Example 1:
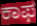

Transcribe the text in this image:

ಕಾಫ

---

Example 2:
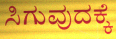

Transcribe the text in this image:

ಸಿಗುವುದಕ್ಕೆ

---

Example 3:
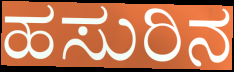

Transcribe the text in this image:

ಹಸುರಿನ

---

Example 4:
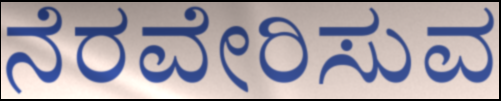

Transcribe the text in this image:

ನೆರವೇರಿಸುವ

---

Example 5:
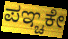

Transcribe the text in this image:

ಪಞ್ಚಕೇ